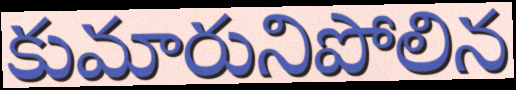
కుమారునిపోలిన